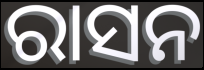
ରାସନ